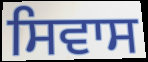
ਸਿਵਾਸ